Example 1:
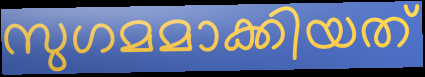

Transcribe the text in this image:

സുഗമമാക്കിയത്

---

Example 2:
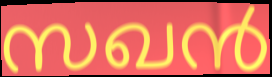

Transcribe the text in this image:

സഖൻ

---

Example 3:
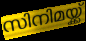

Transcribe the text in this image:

സിനിമയ്ക്ക്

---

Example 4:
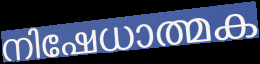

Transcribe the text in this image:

നിഷേധാത്മക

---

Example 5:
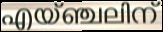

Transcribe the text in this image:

എയ്ഞ്ചലിന്